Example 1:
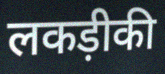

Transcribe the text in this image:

लकड़ीकी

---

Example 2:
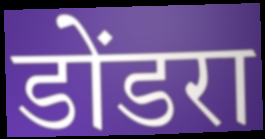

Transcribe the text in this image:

डोंडरा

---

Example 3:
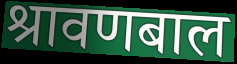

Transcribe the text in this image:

श्रावणबाल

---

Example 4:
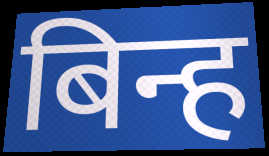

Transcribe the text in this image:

बिन्ह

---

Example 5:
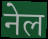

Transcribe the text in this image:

नेल